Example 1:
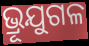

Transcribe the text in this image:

ଭ୍ରୂଯୁଗଳ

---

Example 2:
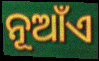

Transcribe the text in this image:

ନୂଆଁଏ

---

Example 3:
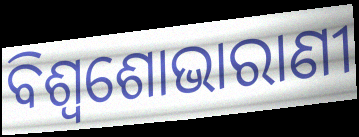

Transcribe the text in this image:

ବିଶ୍ୱଶୋଭାରାଣୀ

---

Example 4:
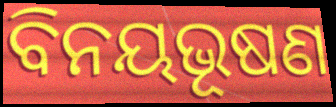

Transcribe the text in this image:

ବିନୟଭୂଷଣ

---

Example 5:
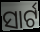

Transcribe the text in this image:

ସାର୍ଟ